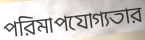
পরিমাপযোগ্যতার